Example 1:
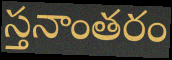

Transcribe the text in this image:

స్తనాంతరం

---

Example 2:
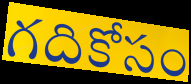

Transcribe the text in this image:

గదికోసం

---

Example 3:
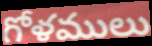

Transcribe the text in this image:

గోళములు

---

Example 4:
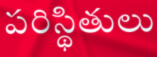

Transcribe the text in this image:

పరిస్థితులు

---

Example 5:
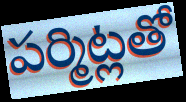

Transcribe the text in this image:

పర్మిట్లతో